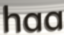
haa